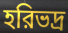
হরিভদ্র